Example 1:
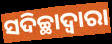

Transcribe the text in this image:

ସଦିଚ୍ଛାଦ୍ୱାରା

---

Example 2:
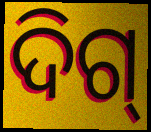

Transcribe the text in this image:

ଦିଗ୍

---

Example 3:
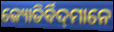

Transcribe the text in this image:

ଜ୍ୟୋତିର୍ବିଦ୍‌ମାନେ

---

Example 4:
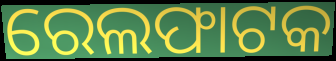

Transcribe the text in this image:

ରେଲଫାଟକ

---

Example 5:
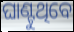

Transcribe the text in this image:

ଘାଣ୍ଟୁଥିବେ